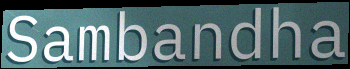
Sambandha